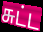
சுட்ட